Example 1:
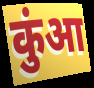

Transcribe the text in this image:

कुंआ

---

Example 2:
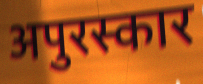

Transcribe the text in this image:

अपुरस्कार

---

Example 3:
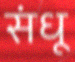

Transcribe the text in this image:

संधू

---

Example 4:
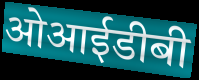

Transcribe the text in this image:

ओआईडीबी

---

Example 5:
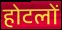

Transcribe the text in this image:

होटलों